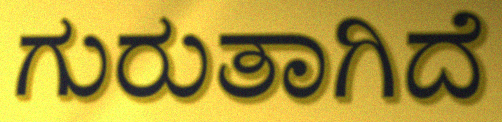
ಗುರುತಾಗಿದೆ